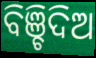
ବିଞ୍ଚିଦିଅ